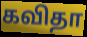
கவிதா